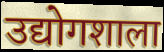
उद्योगशाला